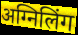
अग्निलिंग